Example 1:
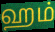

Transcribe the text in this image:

ஹம்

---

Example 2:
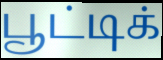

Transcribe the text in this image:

பூட்டிக்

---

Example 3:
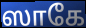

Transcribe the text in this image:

ஸாகே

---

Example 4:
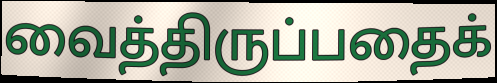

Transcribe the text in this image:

வைத்திருப்பதைக்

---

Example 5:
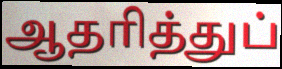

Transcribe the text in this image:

ஆதரித்துப்